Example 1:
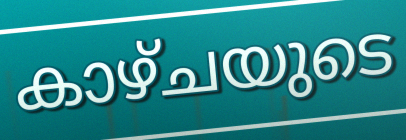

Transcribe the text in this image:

കാഴ്ചയുടെ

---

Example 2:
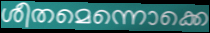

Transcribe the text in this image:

ശീതമെന്നൊക്കെ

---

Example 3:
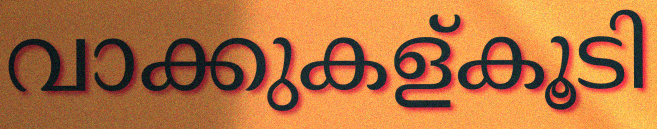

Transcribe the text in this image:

വാക്കുകള്കൂടി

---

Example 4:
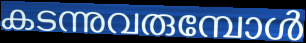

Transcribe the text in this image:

കടന്നുവരുമ്പോൾ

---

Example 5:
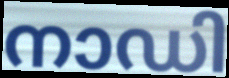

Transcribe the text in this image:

നാഡി